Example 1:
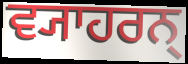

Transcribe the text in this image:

ਵ੍ਯਾਹਰਨ੍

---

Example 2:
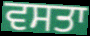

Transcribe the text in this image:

ਵਸਤਾ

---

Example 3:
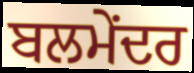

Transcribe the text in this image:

ਬਲਮੇਂਦਰ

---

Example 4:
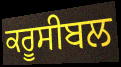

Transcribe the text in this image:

ਕਰੂਸੀਬਲ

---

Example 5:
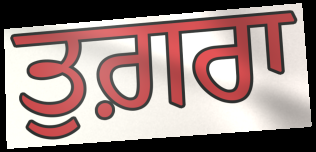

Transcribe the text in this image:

ਤੁਗ਼ਰਾ